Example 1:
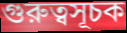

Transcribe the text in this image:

গুরুত্বসূচক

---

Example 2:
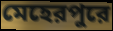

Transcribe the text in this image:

মেহেরপুরে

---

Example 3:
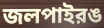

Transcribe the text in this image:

জলপাইরঙ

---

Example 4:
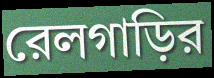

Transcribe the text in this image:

রেলগাড়ির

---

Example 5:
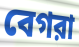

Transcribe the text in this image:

বেগরা